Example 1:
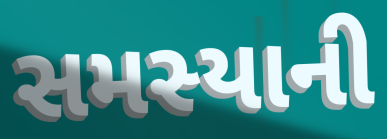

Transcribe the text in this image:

સમસ્યાની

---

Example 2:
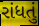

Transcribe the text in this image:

રાંધતું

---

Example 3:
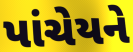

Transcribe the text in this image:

પાંચેયને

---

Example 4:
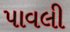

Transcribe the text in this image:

પાવલી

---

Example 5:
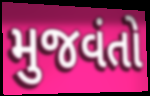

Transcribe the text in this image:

મુજવંતો